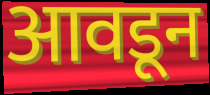
आवडून